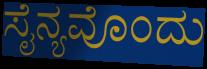
ಸೈನ್ಯವೊಂದು